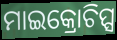
ମାଇକ୍ରୋଚିପ୍ସ